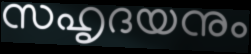
സഹൃദയനും